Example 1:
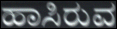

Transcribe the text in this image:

ಹಾಸಿರುವ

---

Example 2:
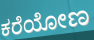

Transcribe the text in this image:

ಕರೆಯೋಣ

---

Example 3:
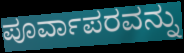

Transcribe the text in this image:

ಪೂರ್ವಾಪರವನ್ನು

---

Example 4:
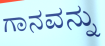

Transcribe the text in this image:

ಗಾನವನ್ನು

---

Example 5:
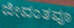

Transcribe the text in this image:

ಜೀವಂತವೂ